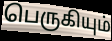
பெருகியும்